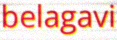
belagavi